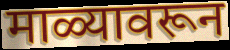
माळ्यावरून